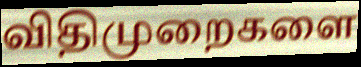
விதிமுறைகளை